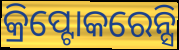
କ୍ରିପ୍ଟୋକରେନ୍ସି